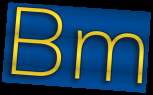
Bm